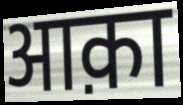
आक़ा